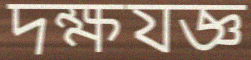
দক্ষযজ্ঞ